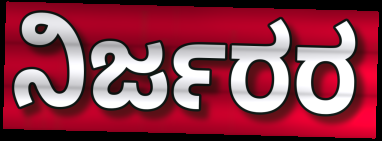
ನಿರ್ಜರರ